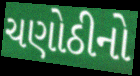
ચણોઠીનો